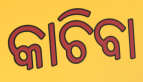
କାଚିବା